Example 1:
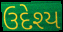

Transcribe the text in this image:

ઉદેશ્ય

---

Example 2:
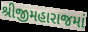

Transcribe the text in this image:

શ્રીજીમહારાજમાં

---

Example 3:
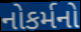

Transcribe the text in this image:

નોકર્મનો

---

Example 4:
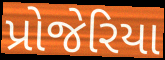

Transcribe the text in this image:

પ્રોજેરિયા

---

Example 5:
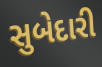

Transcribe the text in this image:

સુબેદારી